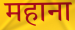
महाना